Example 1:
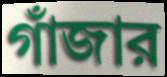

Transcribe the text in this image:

গাঁজার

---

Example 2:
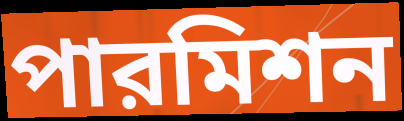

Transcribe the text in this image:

পারমিশন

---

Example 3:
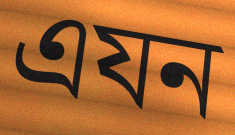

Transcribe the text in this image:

এযন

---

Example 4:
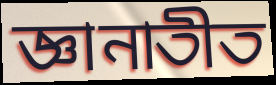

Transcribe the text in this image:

জ্ঞানাতীত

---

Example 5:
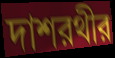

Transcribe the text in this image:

দাশরথীর